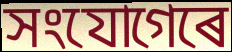
সংযোগেৰে